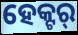
ହେକ୍ଟର୍